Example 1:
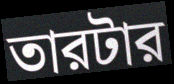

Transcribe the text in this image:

তারটার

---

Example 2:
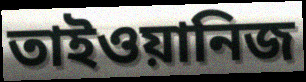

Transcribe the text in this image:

তাইওয়ানিজ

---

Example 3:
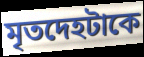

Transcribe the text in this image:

মৃতদেহটাকে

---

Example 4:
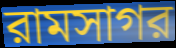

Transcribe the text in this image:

রামসাগর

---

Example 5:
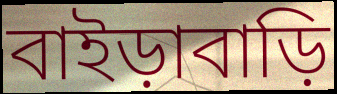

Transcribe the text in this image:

বাইড়াবাড়ি